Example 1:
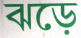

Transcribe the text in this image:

ঝড়ে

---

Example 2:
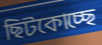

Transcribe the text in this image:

ছিটকোচ্ছে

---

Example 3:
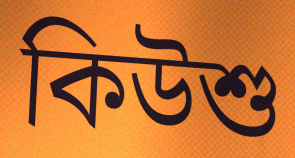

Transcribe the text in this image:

কিউশু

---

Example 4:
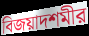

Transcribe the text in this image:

বিজয়াদশমীর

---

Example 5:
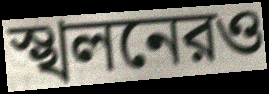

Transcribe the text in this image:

স্খলনেরও